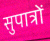
सुपात्रों